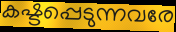
കഷ്ടപ്പെടുന്നവരേ